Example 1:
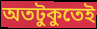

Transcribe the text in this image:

অতটুকুতেই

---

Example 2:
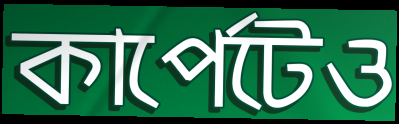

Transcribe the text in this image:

কার্পেটেও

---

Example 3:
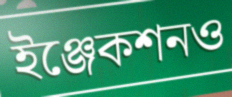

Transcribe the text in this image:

ইঞ্জেকশনও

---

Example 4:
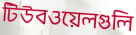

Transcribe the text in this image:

টিউবওয়েলগুলি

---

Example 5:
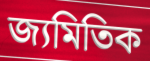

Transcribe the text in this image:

জ্যমিতিক